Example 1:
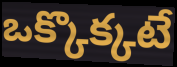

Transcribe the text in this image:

ఒక్కొక్కటే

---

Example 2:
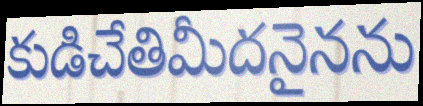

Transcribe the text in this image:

కుడిచేతిమీదనైనను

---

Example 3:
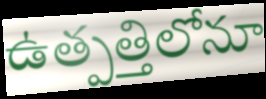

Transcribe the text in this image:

ఉత్పత్తిలోనూ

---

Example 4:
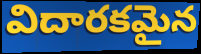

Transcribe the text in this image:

విదారకమైన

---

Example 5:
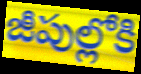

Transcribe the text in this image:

జీపుల్లోకి